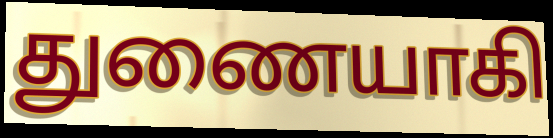
துணையாகி